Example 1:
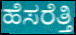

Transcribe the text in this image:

ಹೆಸರೆತ್ತಿ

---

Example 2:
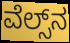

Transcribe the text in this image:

ವೆಲ್ಸ್‌ನ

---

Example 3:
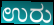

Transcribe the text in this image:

ಉರು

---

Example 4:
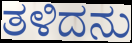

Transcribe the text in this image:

ತಳಿದನು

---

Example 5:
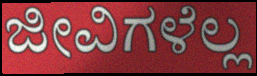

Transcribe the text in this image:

ಜೀವಿಗಳೆಲ್ಲ